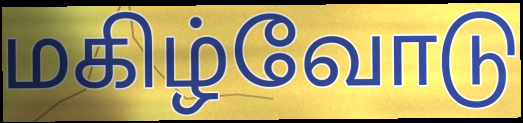
மகிழ்வோடு